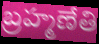
బ్రహ్మణేతి